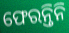
ଫେରନ୍ତିନି